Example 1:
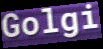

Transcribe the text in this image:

Golgi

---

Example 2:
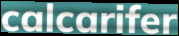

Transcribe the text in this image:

calcarifer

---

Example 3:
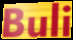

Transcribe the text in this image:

Buli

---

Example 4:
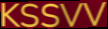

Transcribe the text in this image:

KSSVV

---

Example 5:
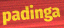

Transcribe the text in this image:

padinga